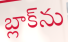
బ్లాక్‌ను